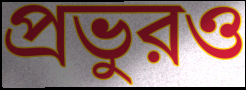
প্রভুরও